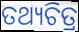
ତଥ୍ୟଚିତ୍ର